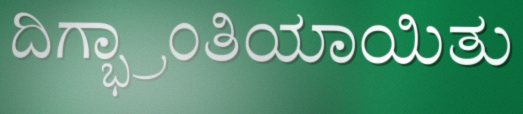
ದಿಗ್ಭ್ರಾಂತಿಯಾಯಿತು